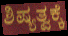
ಶಿಷ್ಯತ್ವಕ್ಕೆ